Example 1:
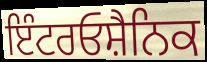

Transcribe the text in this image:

ਇੰਟਰਓਸ਼ੈਨਿਕ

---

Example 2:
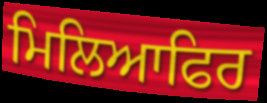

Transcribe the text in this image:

ਮਿਲਿਆਫਿਰ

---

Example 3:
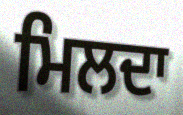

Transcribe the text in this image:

ਮਿਲਦਾ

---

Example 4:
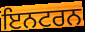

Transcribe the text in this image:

ਇਨਟਰਨ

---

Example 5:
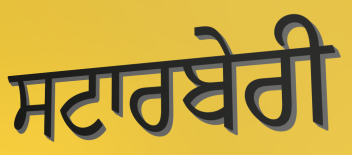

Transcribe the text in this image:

ਸਟਾਰਬੇਰੀ